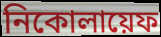
নিকোলায়েফ